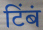
टिंबं